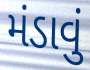
મંડાવું